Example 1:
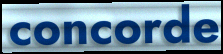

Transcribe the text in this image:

concorde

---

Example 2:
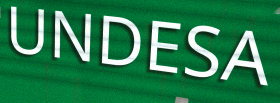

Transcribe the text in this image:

UNDESA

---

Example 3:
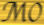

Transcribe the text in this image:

MO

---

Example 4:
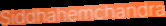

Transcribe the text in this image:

Siddhahemchandra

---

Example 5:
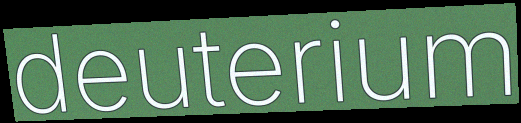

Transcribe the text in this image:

deuterium